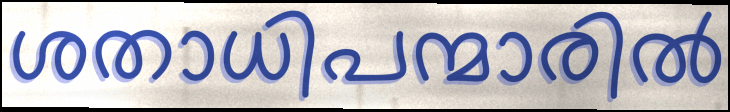
ശതാധിപന്മാരിൽ